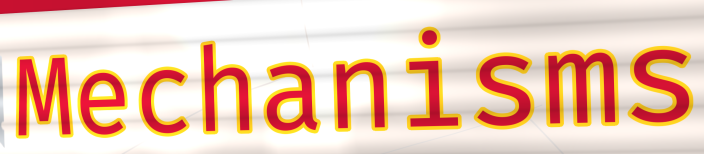
Mechanisms